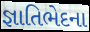
જ્ઞાતિભેદના